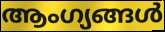
ആംഗ്യങ്ങൾ